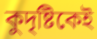
কুদৃষ্টিকেই